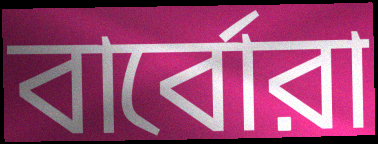
বার্বোরা